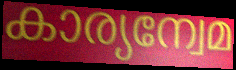
കാര്യന്വേമ